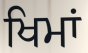
ਖਿਮਾਂ